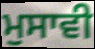
ਮੁਸਾਵੀ